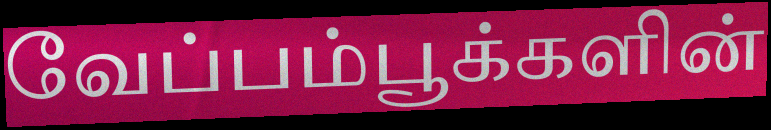
வேப்பம்பூக்களின்